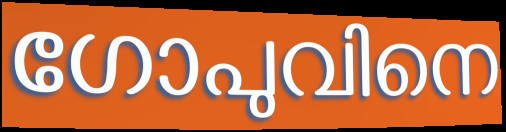
ഗോപുവിനെ